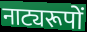
नाट्यरूपों